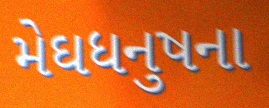
મેઘધનુષના